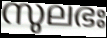
സുലഭഃ